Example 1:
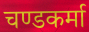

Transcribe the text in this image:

चण्डकर्मा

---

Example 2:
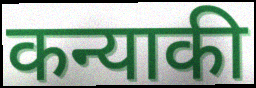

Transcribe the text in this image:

कन्याकी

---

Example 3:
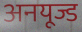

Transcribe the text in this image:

अनयूज्ड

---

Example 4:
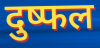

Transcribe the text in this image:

दुष्फल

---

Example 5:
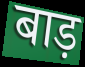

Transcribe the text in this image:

बाड़